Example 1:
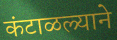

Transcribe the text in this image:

कंटाळल्याने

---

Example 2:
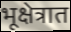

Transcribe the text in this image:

भूक्षेत्रात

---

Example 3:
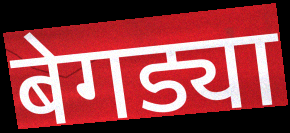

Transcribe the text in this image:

बेगड्या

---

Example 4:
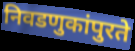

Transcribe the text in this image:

निवडणुकांपुरते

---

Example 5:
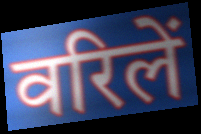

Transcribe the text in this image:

वरिलें